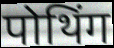
पोथिंग